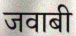
जवाबी